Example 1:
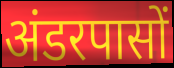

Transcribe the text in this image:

अंडरपासों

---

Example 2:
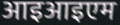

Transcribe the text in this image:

आइआइएम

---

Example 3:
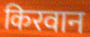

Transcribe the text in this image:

किरवान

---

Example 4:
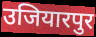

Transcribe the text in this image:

उजियारपुर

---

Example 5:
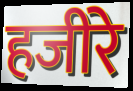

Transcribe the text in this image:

हजीरे